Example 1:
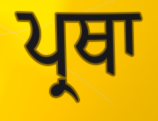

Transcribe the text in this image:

ਪ੍ਰਥਾ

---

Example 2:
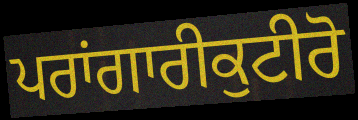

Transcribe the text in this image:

ਪਰਾਂਗਾਰੀਕੁਟੀਰੋ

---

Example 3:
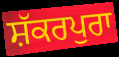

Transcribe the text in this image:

ਸ਼ੱਕਰਪੁਰਾ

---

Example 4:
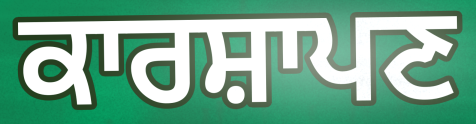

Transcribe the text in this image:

ਕਾਰਸ਼ਾਪਣ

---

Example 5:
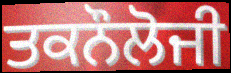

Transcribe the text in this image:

ਤਕਨੌਲੋਜੀ